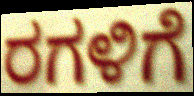
ರಗಳಿಗೆ